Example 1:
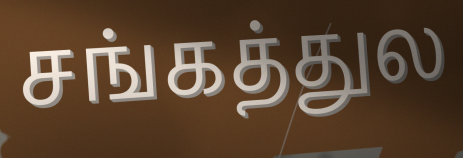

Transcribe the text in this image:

சங்கத்துல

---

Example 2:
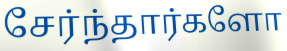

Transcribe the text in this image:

சேர்ந்தார்களோ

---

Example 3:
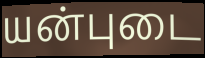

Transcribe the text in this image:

யன்புடை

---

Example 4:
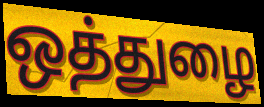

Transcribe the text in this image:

ஒத்துழை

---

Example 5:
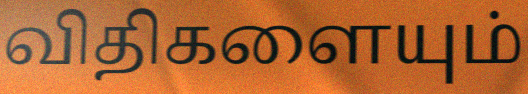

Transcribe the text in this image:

விதிகளையும்